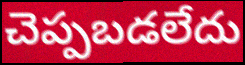
చెప్పబడలేదు